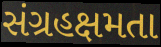
સંગ્રહક્ષમતા